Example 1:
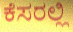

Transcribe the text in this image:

ಕೆಸರಲ್ಲಿ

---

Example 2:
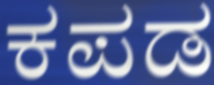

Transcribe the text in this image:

ಕಪಡ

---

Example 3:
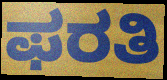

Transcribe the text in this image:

ಫರತಿ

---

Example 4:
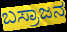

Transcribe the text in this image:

ಬಸ್ರಾಜನ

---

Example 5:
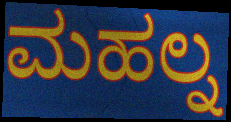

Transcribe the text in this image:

ಮಹಲ್ನ